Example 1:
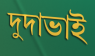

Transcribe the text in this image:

দুদাভাই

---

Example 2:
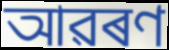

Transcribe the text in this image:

আৱৰণ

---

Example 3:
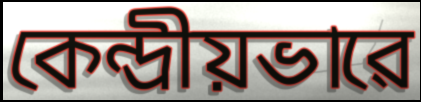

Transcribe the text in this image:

কেন্দ্ৰীয়ভাৱে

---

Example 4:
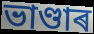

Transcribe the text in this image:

ভাণ্ডাৰ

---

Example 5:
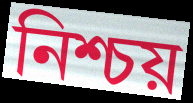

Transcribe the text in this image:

নিশ্চয়